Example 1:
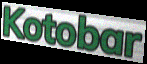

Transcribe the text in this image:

Kotobar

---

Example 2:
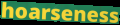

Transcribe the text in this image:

hoarseness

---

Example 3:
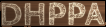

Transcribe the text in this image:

DHPPA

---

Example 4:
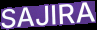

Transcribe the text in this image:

SAJIRA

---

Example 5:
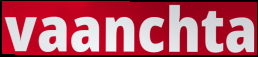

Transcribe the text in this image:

vaanchta